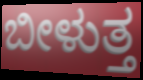
ಬೀಳುತ್ತ